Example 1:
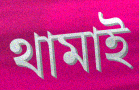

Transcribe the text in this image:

থামাই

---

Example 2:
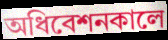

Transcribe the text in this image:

অধিবেশনকালে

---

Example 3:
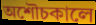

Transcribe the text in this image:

অশৌচকালে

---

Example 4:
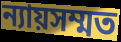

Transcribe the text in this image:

ন্যায়সম্মত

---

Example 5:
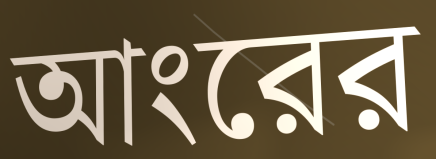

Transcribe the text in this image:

আংরের